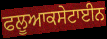
ਫਲੂਆਕਸੇਟਾਈਨ